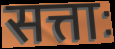
सत्ताः